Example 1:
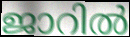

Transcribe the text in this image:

ജാറിൽ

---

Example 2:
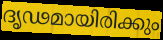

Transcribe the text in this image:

ദൃഢമായിരിക്കും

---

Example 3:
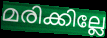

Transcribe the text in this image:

മരിക്കില്ലേ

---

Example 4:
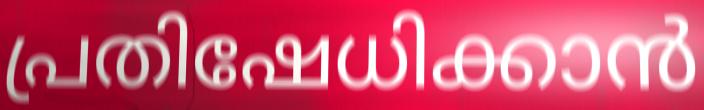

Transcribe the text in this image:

പ്രതിഷേധിക്കാൻ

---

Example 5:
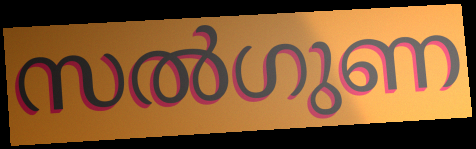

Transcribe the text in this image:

സൽഗുണ